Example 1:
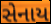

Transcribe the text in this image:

સેનાય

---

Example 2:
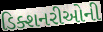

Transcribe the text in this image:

ડિક્શનરીઓની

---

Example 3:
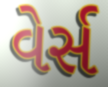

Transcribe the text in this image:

વેર્સ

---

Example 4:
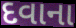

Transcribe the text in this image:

દવાના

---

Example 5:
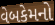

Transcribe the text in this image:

વેબકેમનો